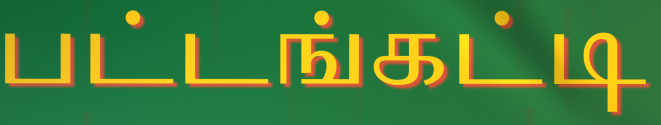
பட்டங்கட்டி